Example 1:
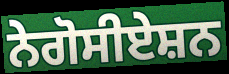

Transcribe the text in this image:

ਨੇਗੋਸੀਏਸ਼ਨ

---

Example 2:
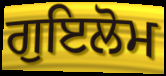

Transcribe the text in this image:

ਗੁਇਲੋਮ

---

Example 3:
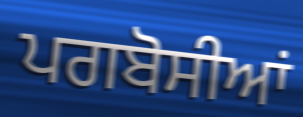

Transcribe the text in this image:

ਪਗਬੋਸੀਆਂ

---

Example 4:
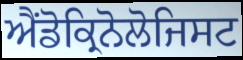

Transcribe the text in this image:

ਐਂਡੋਕ੍ਰਿਨੋਲੋਜਿਸਟ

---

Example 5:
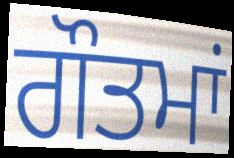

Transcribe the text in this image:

ਗੌਤਮਾਂ